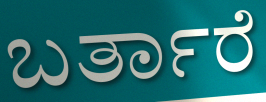
ಬರ್ತಾರೆ